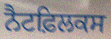
ਨੈਟਫ਼ਿਲਕਸ